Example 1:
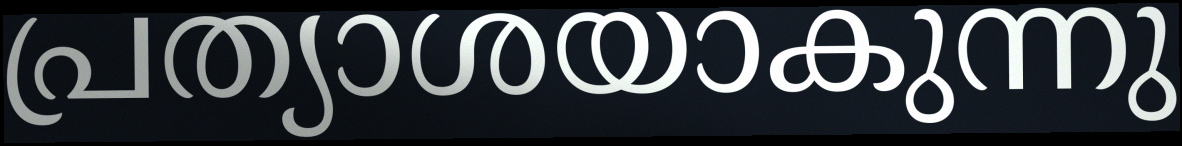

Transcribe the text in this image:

പ്രത്യാശയാകുന്നു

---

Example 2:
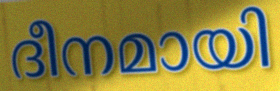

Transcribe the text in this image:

ദീനമായി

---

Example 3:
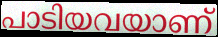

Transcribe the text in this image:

പാടിയവയാണ്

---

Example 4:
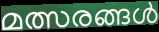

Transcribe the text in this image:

മത്സരങ്ങൾ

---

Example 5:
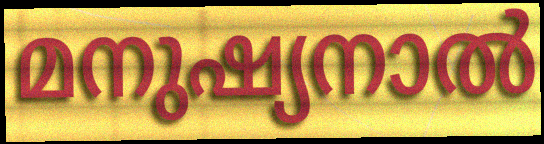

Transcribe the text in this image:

മനുഷ്യനാൽ